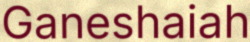
Ganeshaiah